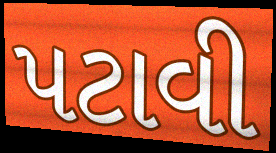
પટાવી